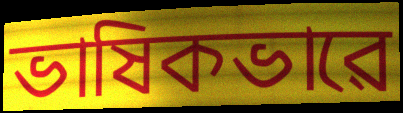
ভাষিকভাৱে